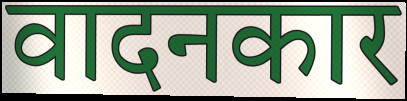
वादनकार